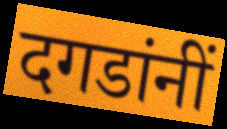
दगडांनीं